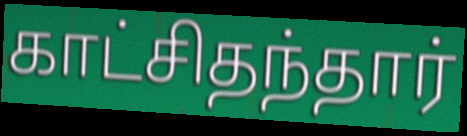
காட்சிதந்தார்